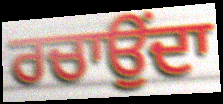
ਰਚਾਉਂਦਾ